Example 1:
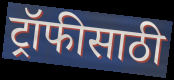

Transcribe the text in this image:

ट्रॉफीसाठी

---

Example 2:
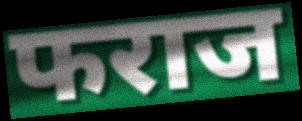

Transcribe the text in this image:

फराज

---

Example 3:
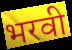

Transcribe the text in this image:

भरवी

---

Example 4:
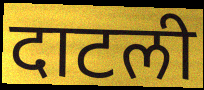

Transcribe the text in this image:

दाटली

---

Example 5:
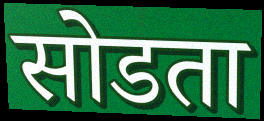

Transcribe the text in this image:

सोडता